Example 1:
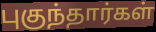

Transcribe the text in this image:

புகுந்தார்கள்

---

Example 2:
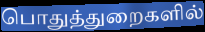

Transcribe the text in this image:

பொதுத்துறைகளில்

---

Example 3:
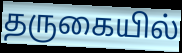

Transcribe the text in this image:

தருகையில்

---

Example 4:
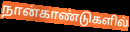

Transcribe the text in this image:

நான்காண்டுகளில்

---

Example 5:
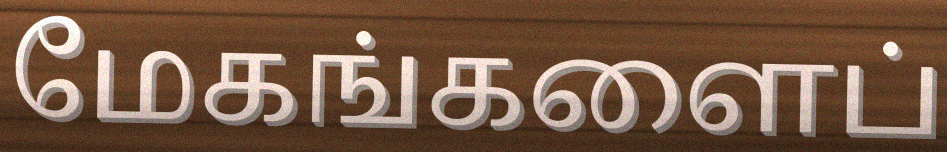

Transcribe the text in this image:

மேகங்களைப்